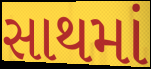
સાથમાં